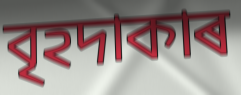
বৃহদাকাৰ